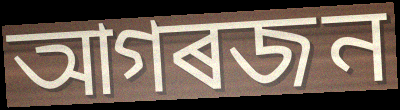
আগৰজন